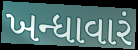
ખન્ધાવારં